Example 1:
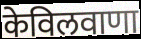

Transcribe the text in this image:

केविलवाणा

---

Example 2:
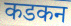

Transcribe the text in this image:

कडकन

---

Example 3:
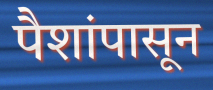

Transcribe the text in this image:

पैशांपासून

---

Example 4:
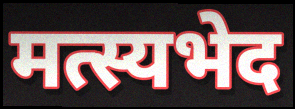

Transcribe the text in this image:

मत्स्यभेद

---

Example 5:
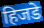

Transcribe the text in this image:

हिजडे